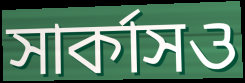
সার্কাসও